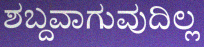
ಶಬ್ದವಾಗುವುದಿಲ್ಲ